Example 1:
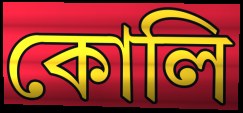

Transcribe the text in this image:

কোলি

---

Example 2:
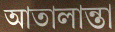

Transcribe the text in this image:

আতালান্তা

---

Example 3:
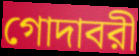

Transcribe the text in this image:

গোদাবরী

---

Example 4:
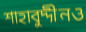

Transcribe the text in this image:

শাহাবুদ্দীনও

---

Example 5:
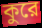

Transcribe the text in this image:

কুরে